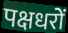
पक्षधरों